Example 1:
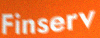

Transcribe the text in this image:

Finserv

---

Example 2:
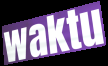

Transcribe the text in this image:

waktu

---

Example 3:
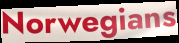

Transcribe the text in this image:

Norwegians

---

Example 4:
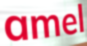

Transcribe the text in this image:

amel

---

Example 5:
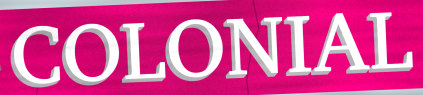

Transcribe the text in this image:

COLONIAL